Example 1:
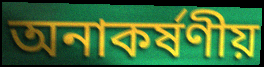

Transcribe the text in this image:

অনাকর্ষণীয়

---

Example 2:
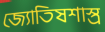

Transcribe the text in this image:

জ্যোতিষশাস্ত্র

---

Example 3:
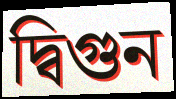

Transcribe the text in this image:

দ্বিগুন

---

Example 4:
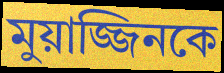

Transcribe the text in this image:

মুয়াজ্জিনকে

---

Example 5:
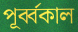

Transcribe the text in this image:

পূর্ব্বকাল